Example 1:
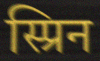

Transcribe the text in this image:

स्प्रिन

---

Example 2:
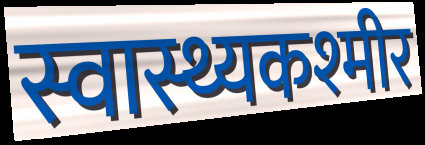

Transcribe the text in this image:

स्वास्थ्यकश्‍मीर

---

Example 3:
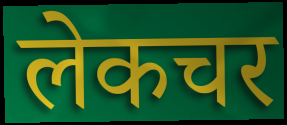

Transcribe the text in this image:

लेकचर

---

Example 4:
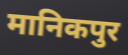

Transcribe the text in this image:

मानिकपुर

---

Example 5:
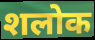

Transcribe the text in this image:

शलोक